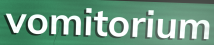
vomitorium